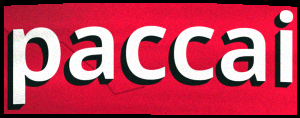
paccai